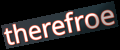
therefroe